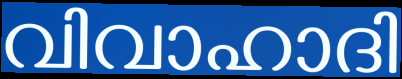
വിവാഹാദി